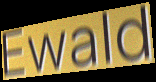
Ewald